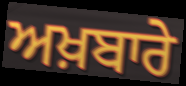
ਅਖ਼ਬਾਰੇ